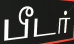
பீடர்